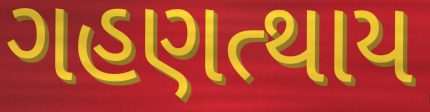
ગહણત્થાય